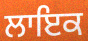
ਲਾਇਕ